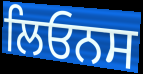
ਲਿਓਨਸ